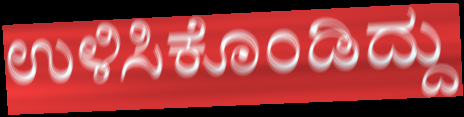
ಉಳಿಸಿಕೊಂಡಿದ್ದು